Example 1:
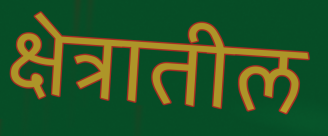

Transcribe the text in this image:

क्षेत्रातील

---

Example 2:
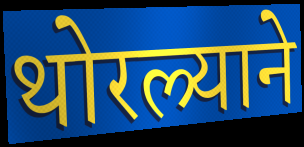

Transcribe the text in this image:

थोरल्याने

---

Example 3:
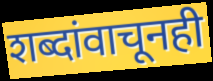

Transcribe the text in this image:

शब्दांवाचूनही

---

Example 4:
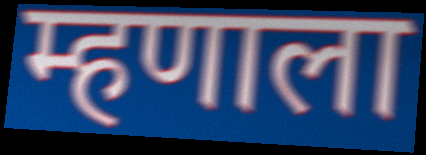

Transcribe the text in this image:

म्हणाला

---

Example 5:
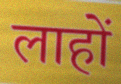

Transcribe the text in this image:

लाहों